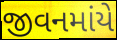
જીવનમાંયે